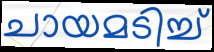
ചായമടിച്ച്